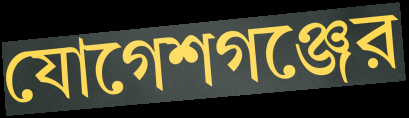
যোগেশগঞ্জের